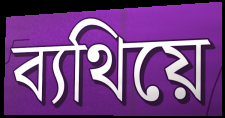
ব্যথিয়ে